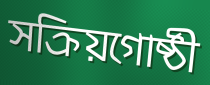
সক্রিয়গোষ্ঠী